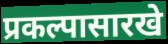
प्रकल्पासारखे